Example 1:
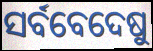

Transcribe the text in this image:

ସର୍ବବେଦେଷୁ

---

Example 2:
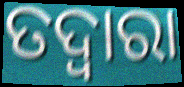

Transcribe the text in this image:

ତଦ୍ବାରା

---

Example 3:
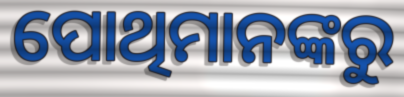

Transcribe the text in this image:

ପୋଥିମାନଙ୍କରୁ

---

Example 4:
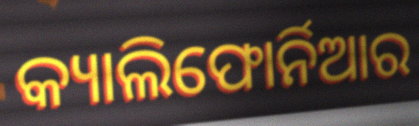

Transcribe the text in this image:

କ୍ୟାଲିଫୋର୍ନିଆର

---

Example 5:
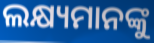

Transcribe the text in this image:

ଲକ୍ଷ୍ୟମାନଙ୍କୁ